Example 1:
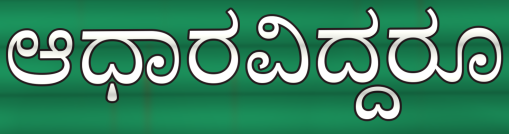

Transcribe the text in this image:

ಆಧಾರವಿದ್ದರೂ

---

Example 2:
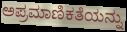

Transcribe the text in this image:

ಅಪ್ರಮಾಣಿಕತೆಯನ್ನು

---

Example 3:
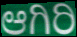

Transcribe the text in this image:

ಆಗಿರಿ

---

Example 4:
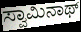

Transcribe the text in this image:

ಸ್ವಾಮಿನಾಥ್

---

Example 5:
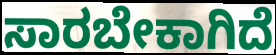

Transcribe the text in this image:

ಸಾರಬೇಕಾಗಿದೆ